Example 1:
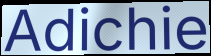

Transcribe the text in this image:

Adichie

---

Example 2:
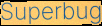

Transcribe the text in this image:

Superbug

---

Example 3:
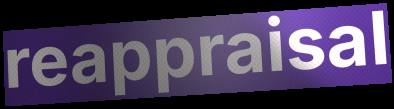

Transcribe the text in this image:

reappraisal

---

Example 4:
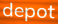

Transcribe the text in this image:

depot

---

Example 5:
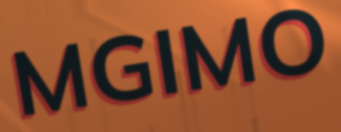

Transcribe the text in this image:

MGIMO